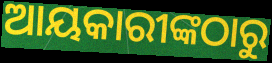
ଆୟକାରୀଙ୍କଠାରୁ